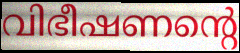
വിഭീഷണന്റെ